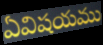
ఏవిషయము